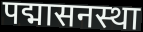
पद्मासनस्था